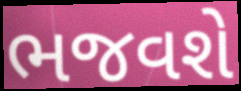
ભજવશે